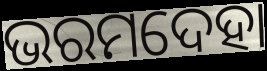
ଭରମଦେହା